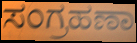
ಸಂಗ್ರಹಣಾ